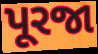
પૂરજા